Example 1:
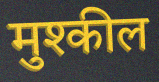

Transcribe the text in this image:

मुश्कील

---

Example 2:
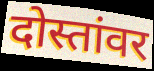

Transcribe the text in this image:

दोस्तांवर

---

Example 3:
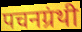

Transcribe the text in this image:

पचनग्रंथी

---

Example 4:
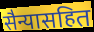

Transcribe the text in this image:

सैन्यासहित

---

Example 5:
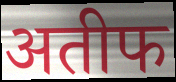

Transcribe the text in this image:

अतीफ